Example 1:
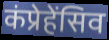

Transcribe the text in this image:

कंप्रेहेंसिव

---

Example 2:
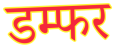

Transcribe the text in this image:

डम्फर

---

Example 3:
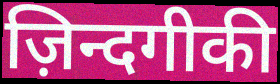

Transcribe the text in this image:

ज़िन्दगीकी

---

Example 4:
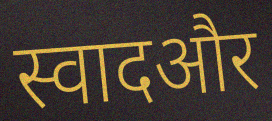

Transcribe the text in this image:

स्वादऔर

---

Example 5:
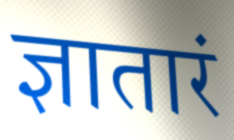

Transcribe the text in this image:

ज्ञातारं